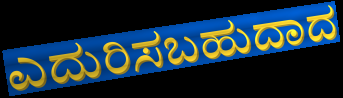
ಎದುರಿಸಬಹುದಾದ